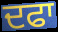
ਦਫਾ